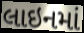
લાઇનમાં